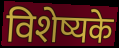
विशेष्यके